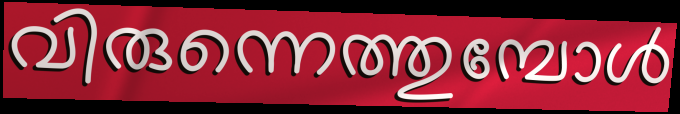
വിരുന്നെത്തുമ്പോൾ